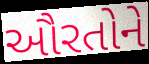
ઔરતોને